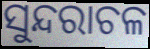
ସୁନ୍ଦରାଚଳ